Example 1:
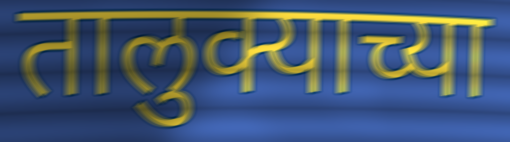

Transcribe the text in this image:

तालुक्याच्या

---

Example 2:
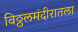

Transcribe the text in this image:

विठ्ठलमंदीरातला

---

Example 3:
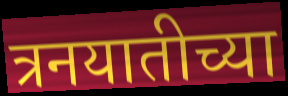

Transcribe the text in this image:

त्रनयातीच्या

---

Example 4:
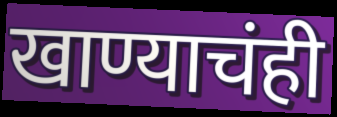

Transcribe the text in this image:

खाण्याचंही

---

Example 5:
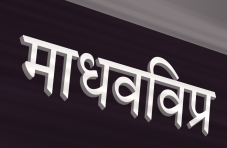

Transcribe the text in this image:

माधवविप्र